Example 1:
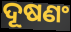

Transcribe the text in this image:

ଦୂଷଣଂ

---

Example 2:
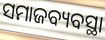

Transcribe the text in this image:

ସମାଜବ୍ୟବସ୍ଥା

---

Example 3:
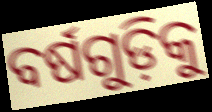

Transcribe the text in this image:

ବର୍ଷଗୁଡ଼ିକୁ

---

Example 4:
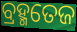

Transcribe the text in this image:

ବ୍ରହ୍ମତେଜ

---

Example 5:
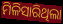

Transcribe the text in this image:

ମିଳିସାରିଥିଲା